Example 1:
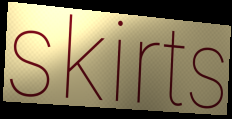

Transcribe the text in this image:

skirts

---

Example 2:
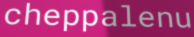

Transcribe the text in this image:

cheppalenu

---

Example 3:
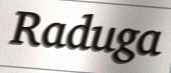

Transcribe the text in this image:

Raduga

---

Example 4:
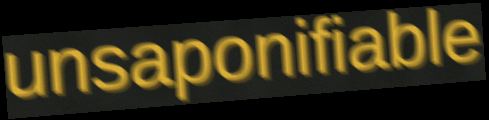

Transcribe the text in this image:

unsaponifiable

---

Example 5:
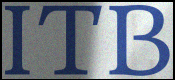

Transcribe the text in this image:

ITB